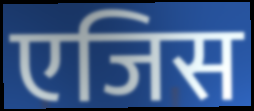
एजिस